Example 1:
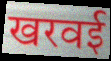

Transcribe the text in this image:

खरवई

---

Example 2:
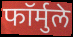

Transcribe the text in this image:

फॉर्मुले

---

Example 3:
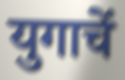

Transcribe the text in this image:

युगाचें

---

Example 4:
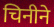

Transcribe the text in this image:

चिनीने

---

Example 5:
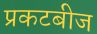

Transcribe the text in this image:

प्रकटबीज